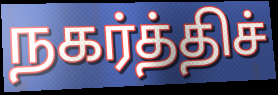
நகர்த்திச்